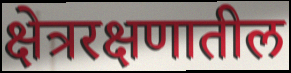
क्षेत्ररक्षणातील